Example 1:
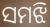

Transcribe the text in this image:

ସମଝି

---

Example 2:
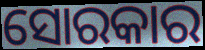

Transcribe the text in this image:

ସୋରକାର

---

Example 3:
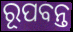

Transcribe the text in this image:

ରୂପବନ୍ତ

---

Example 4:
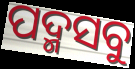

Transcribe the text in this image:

ପଦ୍ମସବୁ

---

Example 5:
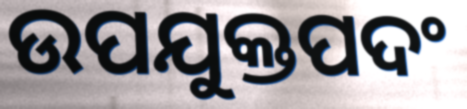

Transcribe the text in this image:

ଉପଯୁକ୍ତପଦଂ